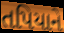
તપિયાને